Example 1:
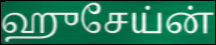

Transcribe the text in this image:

ஹுசேய்ன்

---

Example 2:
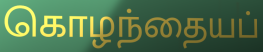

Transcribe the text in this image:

கொழந்தையப்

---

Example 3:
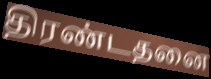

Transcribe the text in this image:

திரண்டதனை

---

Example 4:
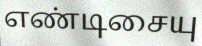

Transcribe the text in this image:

எண்டிசையு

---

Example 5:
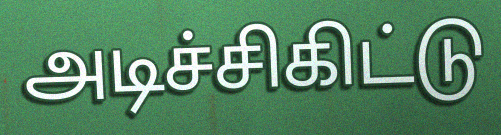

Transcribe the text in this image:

அடிச்சிகிட்டு